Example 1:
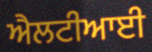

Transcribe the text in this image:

ਐਲਟੀਆਈ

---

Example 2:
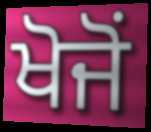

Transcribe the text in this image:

ਖੋਜੋਂ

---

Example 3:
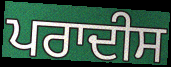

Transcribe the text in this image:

ਪਰਾਦੀਸ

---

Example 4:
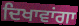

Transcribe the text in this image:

ਦਿਖਾਵਾਂਗਾ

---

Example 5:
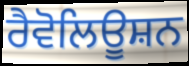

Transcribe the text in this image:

ਰੈਵੋਲਿਊਸ਼ਨ